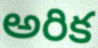
అరిక